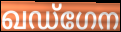
ഖഡ്ഗേന